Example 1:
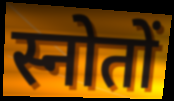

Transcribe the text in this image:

स्नोतों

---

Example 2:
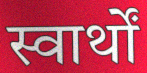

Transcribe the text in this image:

स्वार्थों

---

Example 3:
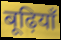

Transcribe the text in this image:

बूढ़ियाँ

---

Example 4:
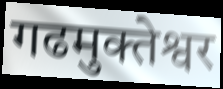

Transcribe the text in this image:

गढमुक्तेश्वर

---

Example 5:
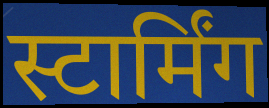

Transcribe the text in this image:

स्टार्मिंग